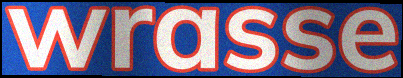
wrasse